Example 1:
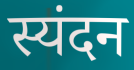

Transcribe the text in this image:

स्यंदन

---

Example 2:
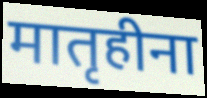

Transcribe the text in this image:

मातृहीना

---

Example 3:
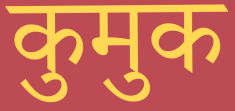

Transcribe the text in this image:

कुमुक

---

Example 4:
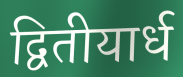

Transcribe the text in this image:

द्वितीयार्ध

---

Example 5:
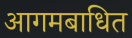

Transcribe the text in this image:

आगमबाधित